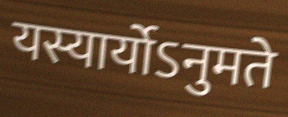
यस्यार्योऽनुमते